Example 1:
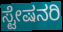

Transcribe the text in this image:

ಸ್ಟೇಷನರಿ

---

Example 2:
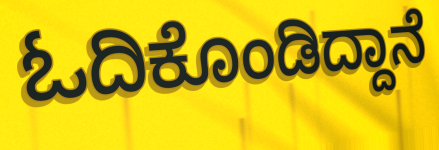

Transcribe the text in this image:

ಓದಿಕೊಂಡಿದ್ದಾನೆ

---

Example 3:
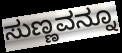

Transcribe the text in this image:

ಸುಣ್ಣವನ್ನೂ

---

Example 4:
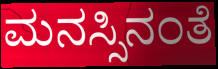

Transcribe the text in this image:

ಮನಸ್ಸಿನಂತೆ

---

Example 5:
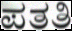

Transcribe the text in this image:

ಪತತಿ